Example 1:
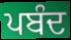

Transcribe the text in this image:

ਪਬੰਦ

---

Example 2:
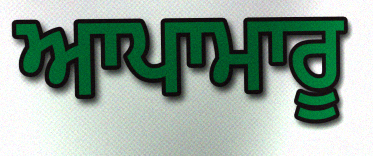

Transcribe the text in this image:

ਆਪਾਮਾਰੂ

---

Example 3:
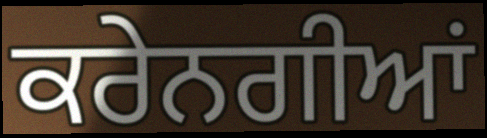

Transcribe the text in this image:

ਕਰੇਨਗੀਆਂ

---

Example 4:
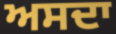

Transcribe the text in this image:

ਅਸਦਾ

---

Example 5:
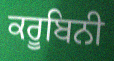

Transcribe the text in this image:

ਕਰੂਬਿਨੀ